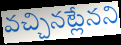
వచ్చినట్లేనని